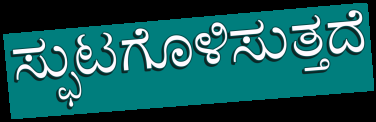
ಸ್ಫುಟಗೊಳಿಸುತ್ತದೆ